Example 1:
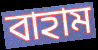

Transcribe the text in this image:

বাহাম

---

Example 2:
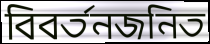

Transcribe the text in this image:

বিবর্তনজনিত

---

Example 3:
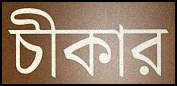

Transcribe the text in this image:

চীকার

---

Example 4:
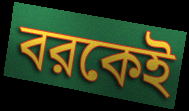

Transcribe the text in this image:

বরকেই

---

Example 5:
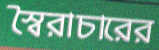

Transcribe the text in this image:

স্বৈরাচারের